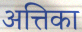
अत्तिका